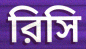
রিসি